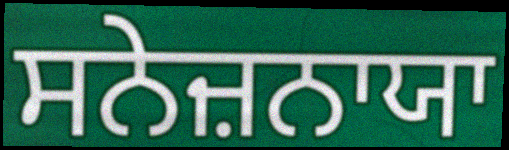
ਸਨੇਜ਼ਨਾਯਾ